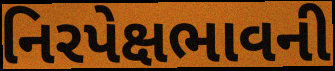
નિરપેક્ષભાવની